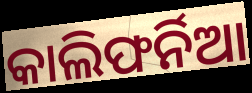
କାଲିଫର୍ନିଆ